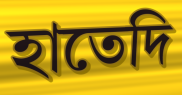
হাতেদি